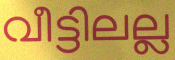
വീട്ടിലല്ല